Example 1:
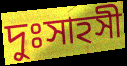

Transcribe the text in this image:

দুঃসাহসী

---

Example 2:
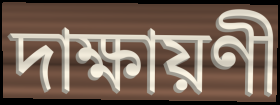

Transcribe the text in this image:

দাক্ষায়ণী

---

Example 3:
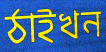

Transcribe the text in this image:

ঠাইখন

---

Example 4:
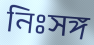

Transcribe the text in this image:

নিঃসঙ্গ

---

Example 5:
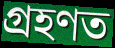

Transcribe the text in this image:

গ্ৰহণত